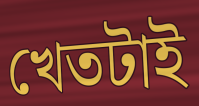
খেতটাই